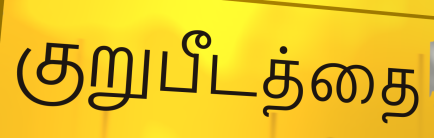
குறுபீடத்தை